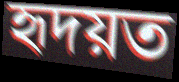
হৃদয়ত